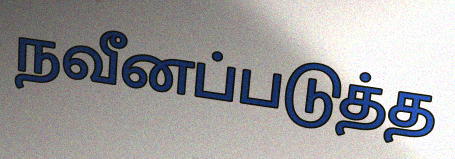
நவீனப்படுத்த